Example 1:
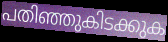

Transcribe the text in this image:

പതിഞ്ഞുകിടക്കുക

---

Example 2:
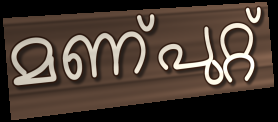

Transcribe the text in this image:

മണ്പുറ്റ്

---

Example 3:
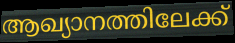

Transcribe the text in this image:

ആഖ്യാനത്തിലേക്ക്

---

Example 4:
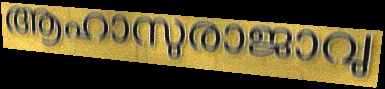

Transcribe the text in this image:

ആഹാസുരാജാവു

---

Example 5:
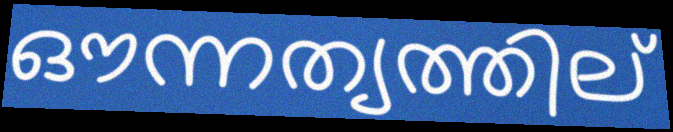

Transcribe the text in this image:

ഔന്നത്യത്തില്